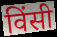
विंसी